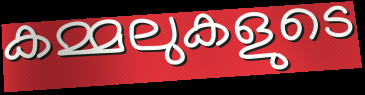
കമ്മലുകളുടെ